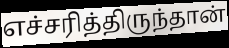
எச்சரித்திருந்தான்